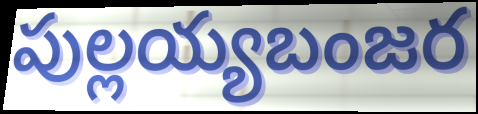
పుల్లయ్యబంజర